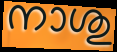
നാശു